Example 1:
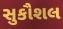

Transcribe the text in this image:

સુકૌશલ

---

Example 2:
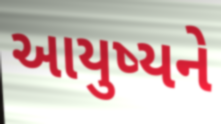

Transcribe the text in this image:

આયુષ્યને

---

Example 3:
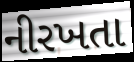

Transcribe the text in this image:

નીરખતા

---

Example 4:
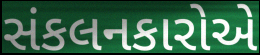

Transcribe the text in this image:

સંકલનકારોએ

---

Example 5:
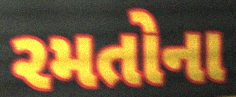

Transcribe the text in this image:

રમતોના